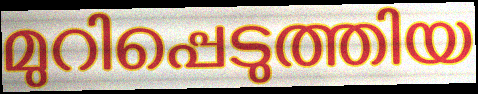
മുറിപ്പെടുത്തിയ